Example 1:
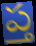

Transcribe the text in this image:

ప్త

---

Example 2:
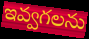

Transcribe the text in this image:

ఇవ్వగలను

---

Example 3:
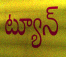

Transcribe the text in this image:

ట్యూన్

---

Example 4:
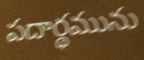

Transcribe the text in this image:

పదార్థమును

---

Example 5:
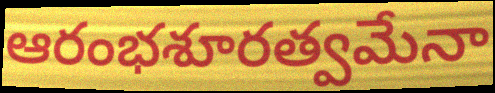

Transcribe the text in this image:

ఆరంభశూరత్వమేనా